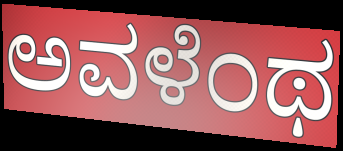
ಅವಳೆಂಥ